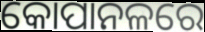
କୋପାନଳରେ